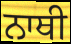
ਨਾਥੀ